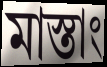
মাস্তাং